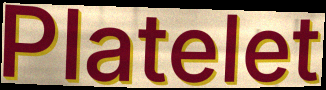
Platelet